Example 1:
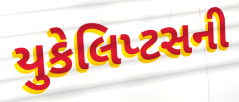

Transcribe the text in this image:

યુકેલિપ્ટસની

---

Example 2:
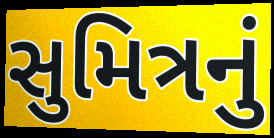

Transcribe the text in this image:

સુમિત્રનું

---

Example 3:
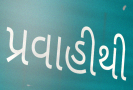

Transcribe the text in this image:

પ્રવાહીથી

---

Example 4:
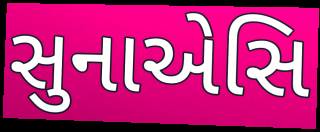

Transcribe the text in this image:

સુનાએસિ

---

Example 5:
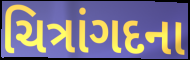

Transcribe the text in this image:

ચિત્રાંગદના